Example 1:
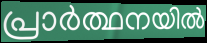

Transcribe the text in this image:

പ്രാർത്ഥനയിൽ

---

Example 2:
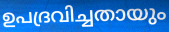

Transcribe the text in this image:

ഉപദ്രവിച്ചതായും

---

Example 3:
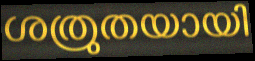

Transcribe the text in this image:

ശത്രുതയായി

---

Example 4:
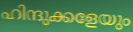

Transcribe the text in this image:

ഹിന്ദുക്കളേയും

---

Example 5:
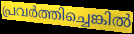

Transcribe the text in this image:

പ്രവർത്തിച്ചെങ്കിൽ